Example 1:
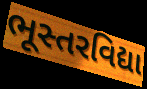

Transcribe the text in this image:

ભૂસ્તરવિદ્યા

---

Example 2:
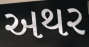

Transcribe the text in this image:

અથર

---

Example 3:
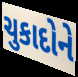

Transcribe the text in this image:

ચુકાદોને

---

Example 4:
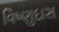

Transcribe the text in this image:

વિષ્ણુદાસ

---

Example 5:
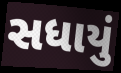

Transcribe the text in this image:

સધાયું